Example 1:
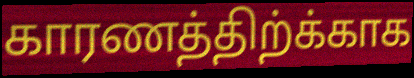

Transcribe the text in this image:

காரணத்திற்க்காக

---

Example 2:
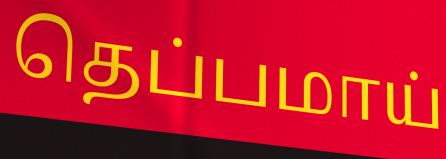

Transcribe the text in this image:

தெப்பமாய்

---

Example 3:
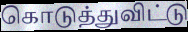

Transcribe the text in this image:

கொடுத்துவிட்டு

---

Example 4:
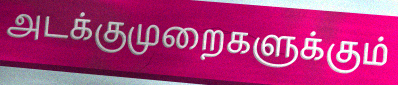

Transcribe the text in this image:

அடக்குமுறைகளுக்கும்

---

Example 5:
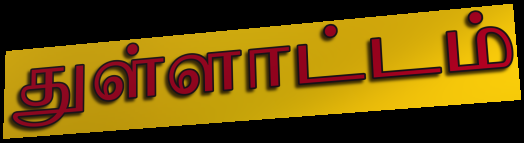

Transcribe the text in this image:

துள்ளாட்டம்